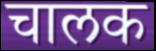
चालक